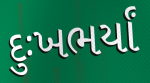
દુઃખભર્યાં